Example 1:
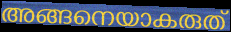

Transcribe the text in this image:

അങ്ങനെയാകരുത്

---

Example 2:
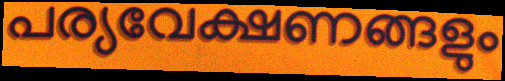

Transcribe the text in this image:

പര്യവേക്ഷണങ്ങളും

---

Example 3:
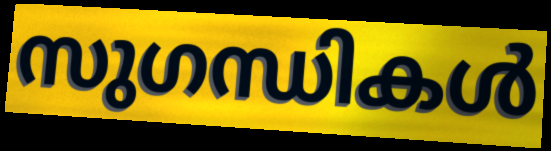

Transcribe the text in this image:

സുഗന്ധികൾ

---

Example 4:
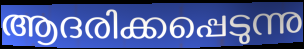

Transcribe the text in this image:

ആദരിക്കപ്പെടുന്നു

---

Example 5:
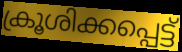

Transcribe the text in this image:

ക്രൂശിക്കപ്പെട്ട്